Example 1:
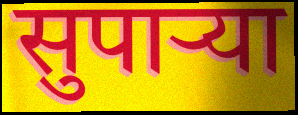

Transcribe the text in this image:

सुपार्‍या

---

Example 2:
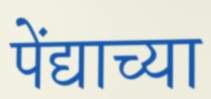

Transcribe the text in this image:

पेंद्याच्या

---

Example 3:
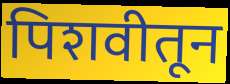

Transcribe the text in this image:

पिशवीतून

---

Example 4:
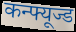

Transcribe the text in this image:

कन्फ्यूज्ड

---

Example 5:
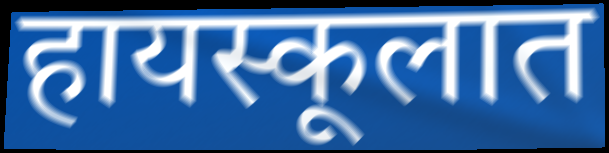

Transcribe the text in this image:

हायस्कूलात